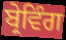
ਬ੍ਰੇਵਿੰਗ